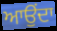
ਆਉੰਦਾ